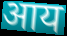
आय